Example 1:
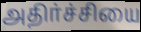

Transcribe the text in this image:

அதிர்ச்சியை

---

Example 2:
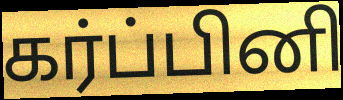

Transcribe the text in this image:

கர்ப்பினி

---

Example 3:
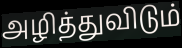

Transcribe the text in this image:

அழித்துவிடும்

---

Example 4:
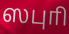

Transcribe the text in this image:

ஸபுரி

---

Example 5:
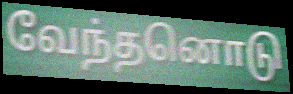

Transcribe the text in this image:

வேந்தனொடு